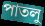
পাতলু